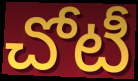
చోటీ